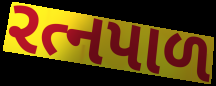
રત્નપાળ